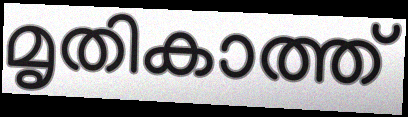
മൃതികാത്ത്